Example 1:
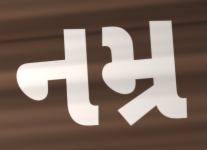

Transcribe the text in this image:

નમ્ર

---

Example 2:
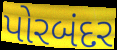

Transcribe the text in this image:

પોરબંદર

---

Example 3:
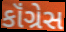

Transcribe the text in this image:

કૉંગ્રેસ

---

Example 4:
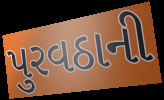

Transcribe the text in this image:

પુરવઠાની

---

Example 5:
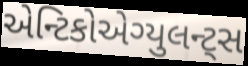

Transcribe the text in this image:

એન્ટિકોએગ્યુલન્ટ્સ